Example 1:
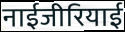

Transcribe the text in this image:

नाईजीरियाई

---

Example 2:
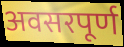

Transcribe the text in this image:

अवसरपूर्ण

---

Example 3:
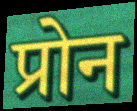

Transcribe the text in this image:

प्रोन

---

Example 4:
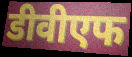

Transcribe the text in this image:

डीवीएफ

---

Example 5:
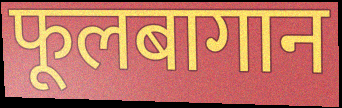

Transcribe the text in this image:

फूलबागान